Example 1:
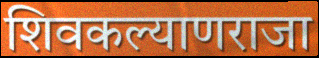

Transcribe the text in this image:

शिवकल्याणराजा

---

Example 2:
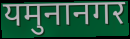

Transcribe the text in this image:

यमुनानगर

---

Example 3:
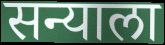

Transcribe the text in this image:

सन्याला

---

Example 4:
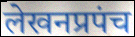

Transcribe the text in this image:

लेखनप्रपंच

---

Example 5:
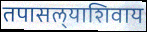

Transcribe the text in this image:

तपासल्याशिवाय